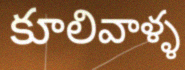
కూలివాళ్ళ